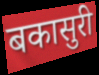
बकासुरी